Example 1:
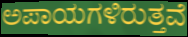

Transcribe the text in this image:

ಅಪಾಯಗಳಿರುತ್ತವೆ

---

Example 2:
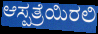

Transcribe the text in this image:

ಆಸ್ಪತ್ರೆಯಿರಲಿ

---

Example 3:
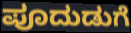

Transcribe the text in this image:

ಪೂದುಡುಗೆ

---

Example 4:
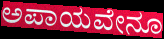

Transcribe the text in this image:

ಅಪಾಯವೇನೂ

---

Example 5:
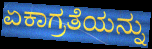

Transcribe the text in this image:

ಏಕಾಗ್ರತೆಯನ್ನು